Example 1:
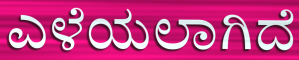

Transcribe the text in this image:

ಎಳೆಯಲಾಗಿದೆ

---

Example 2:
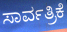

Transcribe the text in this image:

ಸಾರ್ವತ್ರಿಕೆ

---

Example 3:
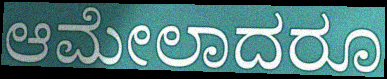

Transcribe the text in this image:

ಆಮೇಲಾದರೂ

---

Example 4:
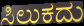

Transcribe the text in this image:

ಸಿಲುಕದು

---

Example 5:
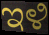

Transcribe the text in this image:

ಇಳಿ